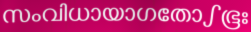
സംവിധായാഗതോഽഭൂഃ